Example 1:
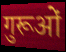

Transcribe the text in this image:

गुरूओं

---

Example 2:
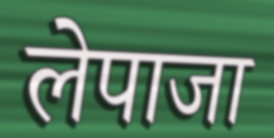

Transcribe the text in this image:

लेपाजा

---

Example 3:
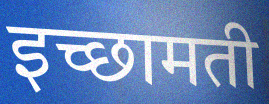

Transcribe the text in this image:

इच्छामती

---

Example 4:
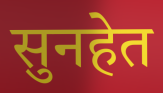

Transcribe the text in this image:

सुनहेत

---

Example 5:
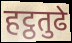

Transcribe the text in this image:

हट्ठतुढे